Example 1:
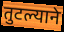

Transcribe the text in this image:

तुटल्याने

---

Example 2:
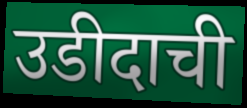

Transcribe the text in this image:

उडीदाची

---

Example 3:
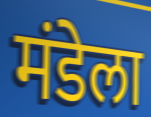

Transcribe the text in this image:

मंडेला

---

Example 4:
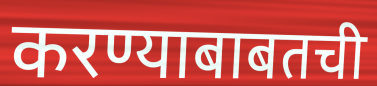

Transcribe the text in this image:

करण्याबाबतची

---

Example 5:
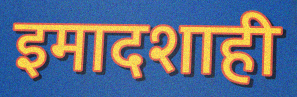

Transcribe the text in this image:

इमादशाही